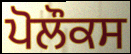
ਪੋਲੌਕਸ